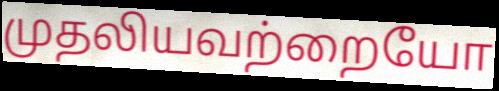
முதலியவற்றையோ